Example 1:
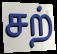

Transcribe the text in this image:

சற்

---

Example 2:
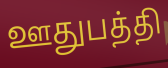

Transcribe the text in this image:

ஊதுபத்தி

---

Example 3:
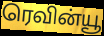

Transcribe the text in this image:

ரெவின்யூ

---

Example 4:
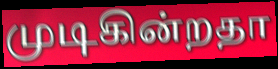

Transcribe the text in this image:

முடிகின்றதா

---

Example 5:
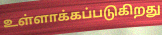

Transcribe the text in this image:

உள்ளாக்கப்படுகிறது